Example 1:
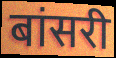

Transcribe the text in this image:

बांसरी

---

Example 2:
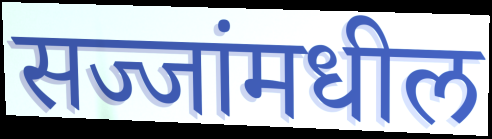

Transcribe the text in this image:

सज्जांमधील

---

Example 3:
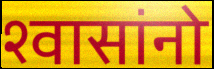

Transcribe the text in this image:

श्वासांनो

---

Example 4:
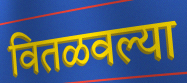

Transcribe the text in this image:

वितळवल्या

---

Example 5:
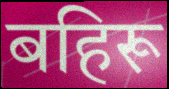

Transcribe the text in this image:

बहिरू